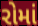
રોમાં